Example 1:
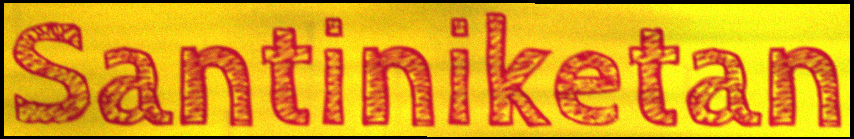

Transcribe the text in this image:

Santiniketan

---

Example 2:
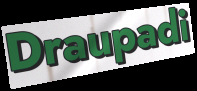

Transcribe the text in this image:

Draupadi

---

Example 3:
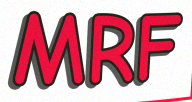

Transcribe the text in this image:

MRF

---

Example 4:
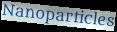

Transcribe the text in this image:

Nanoparticles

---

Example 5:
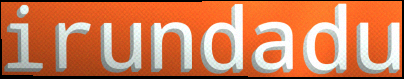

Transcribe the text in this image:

irundadu